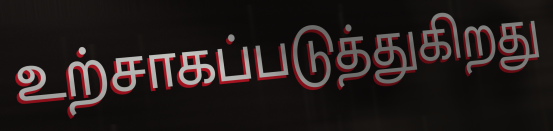
உற்சாகப்படுத்துகிறது